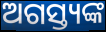
ଅଗସ୍ତ୍ୟଙ୍କ